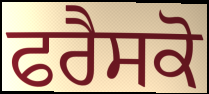
ਫਰੈਸਕੋ